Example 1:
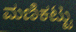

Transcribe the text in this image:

ಮಣಿಕಟ್ಟು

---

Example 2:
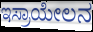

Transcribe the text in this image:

ಇಸ್ರಾಯೇಲನ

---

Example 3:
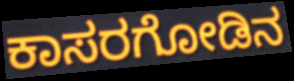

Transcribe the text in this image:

ಕಾಸರಗೋಡಿನ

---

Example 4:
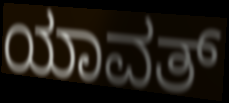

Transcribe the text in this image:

ಯಾವತ್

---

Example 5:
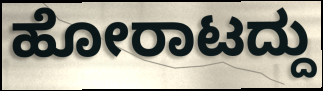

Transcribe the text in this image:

ಹೋರಾಟದ್ದು